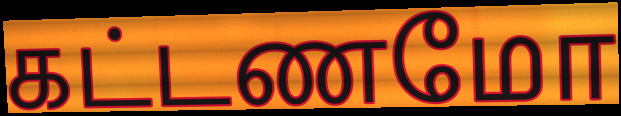
கட்டணமோ